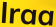
Iraa